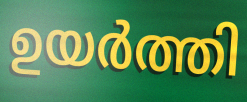
ഉയർത്തി